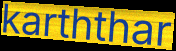
karththar